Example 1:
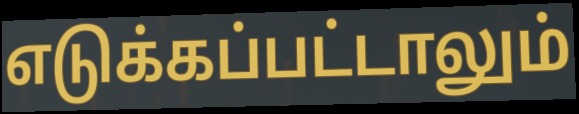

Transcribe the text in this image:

எடுக்கப்பட்டாலும்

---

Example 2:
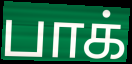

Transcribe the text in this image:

பாக்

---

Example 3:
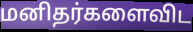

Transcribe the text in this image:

மனிதர்களைவிட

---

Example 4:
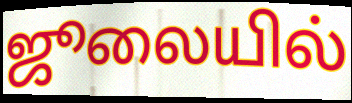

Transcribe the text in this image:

ஜூலையில்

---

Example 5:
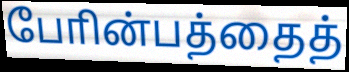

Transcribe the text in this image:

பேரின்பத்தைத்